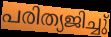
പരിത്യജിച്ചു്